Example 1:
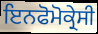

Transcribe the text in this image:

ਇਨਫੋਮੋਕ੍ਰੇਸੀ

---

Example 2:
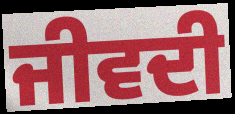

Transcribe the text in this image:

ਜੀਵਦੀ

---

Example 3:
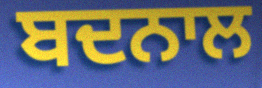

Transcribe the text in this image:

ਬਦਨਾਲ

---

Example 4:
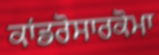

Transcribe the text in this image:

ਕਾਂਡਰੋਸਾਰਕੋਮਾ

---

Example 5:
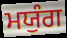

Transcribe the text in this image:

ਮਯੁੰਗ